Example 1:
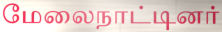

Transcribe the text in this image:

மேலைநாட்டினர்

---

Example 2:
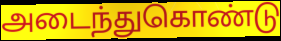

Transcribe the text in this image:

அடைந்துகொண்டு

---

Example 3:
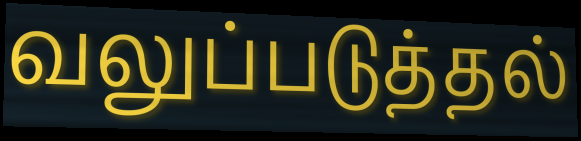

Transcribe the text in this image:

வலுப்படுத்தல்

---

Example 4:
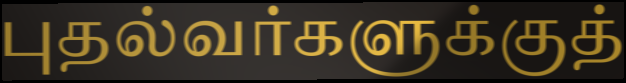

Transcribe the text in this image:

புதல்வர்களுக்குத்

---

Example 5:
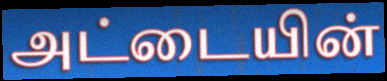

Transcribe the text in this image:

அட்டையின்